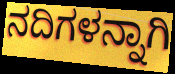
ನದಿಗಳನ್ನಾಗಿ